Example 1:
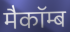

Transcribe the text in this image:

मैकॉम्ब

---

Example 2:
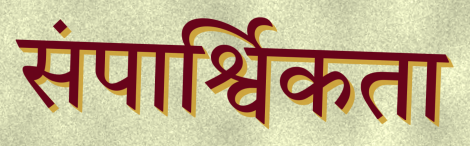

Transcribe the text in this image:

संपार्श्विकता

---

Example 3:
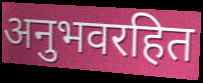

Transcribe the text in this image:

अनुभवरहित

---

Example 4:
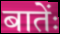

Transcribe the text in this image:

बातेंः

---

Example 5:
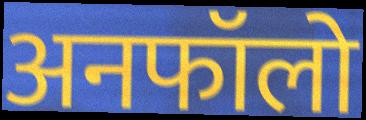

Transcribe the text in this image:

अनफॉलो